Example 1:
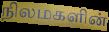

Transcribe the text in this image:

நிலமகளின்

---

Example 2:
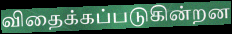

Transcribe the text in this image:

விதைக்கப்படுகின்றன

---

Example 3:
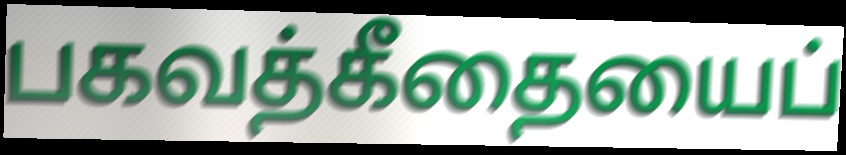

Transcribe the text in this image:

பகவத்கீதையைப்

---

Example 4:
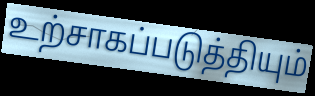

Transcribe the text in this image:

உற்சாகப்படுத்தியும்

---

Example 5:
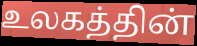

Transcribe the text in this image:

உலகத்தின்